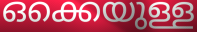
ഒക്കെയുള്ള